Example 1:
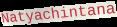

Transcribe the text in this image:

Natyachintana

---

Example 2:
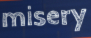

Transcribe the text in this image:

misery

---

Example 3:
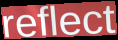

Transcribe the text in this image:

reflect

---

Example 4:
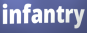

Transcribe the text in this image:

infantry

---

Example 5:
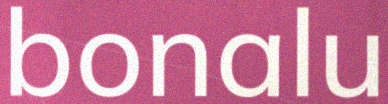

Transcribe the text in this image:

bonalu